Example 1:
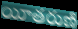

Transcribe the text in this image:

యీతరుణి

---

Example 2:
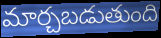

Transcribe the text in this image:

మార్చబడుతుంది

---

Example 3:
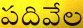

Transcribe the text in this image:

పదివేల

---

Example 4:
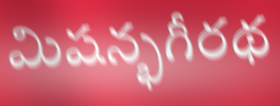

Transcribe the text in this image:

మిషన్భగీరథ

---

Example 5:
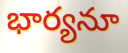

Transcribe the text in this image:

భార్యనూ